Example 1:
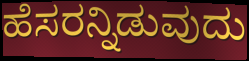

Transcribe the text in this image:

ಹೆಸರನ್ನಿಡುವುದು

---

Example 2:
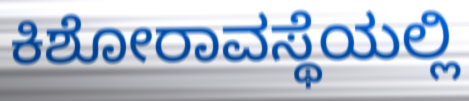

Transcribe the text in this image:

ಕಿಶೋರಾವಸ್ಥೆಯಲ್ಲಿ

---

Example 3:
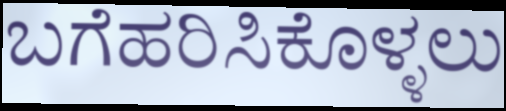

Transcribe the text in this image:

ಬಗೆಹರಿಸಿಕೊಳ್ಳಲು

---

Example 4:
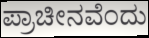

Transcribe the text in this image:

ಪ್ರಾಚೀನವೆಂದು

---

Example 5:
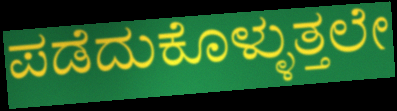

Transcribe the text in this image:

ಪಡೆದುಕೊಳ್ಳುತ್ತಲೇ